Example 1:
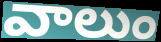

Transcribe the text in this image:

వాలుం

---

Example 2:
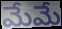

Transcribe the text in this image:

మేమే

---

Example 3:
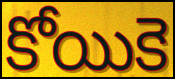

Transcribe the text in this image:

కోయికె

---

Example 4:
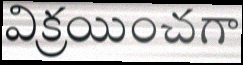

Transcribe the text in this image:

విక్రయించగా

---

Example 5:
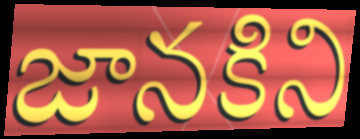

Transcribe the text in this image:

జానకిని